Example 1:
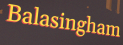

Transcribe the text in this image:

Balasingham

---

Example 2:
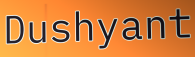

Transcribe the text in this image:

Dushyant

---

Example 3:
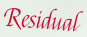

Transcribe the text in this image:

Residual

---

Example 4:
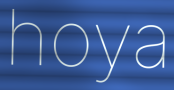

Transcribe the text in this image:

hoya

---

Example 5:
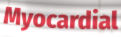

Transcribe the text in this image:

Myocardial